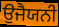
ਉਜੈਯਨੀ